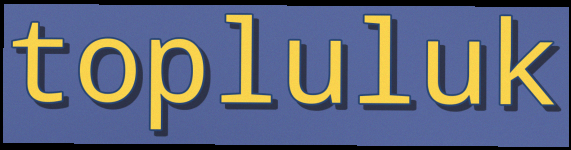
topluluk